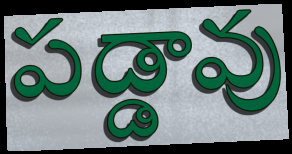
పడ్డావు